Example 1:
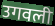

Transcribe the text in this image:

उगवली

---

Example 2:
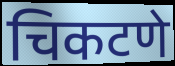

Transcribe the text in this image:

चिकटणे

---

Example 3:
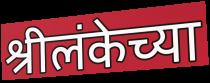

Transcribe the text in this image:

श्रीलंकेच्या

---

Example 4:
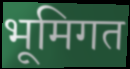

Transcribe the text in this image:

भूमिगत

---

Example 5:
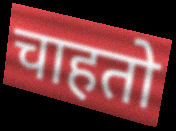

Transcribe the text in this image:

चाहतो